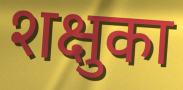
शक्षुका